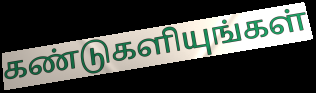
கண்டுகளியுங்கள்